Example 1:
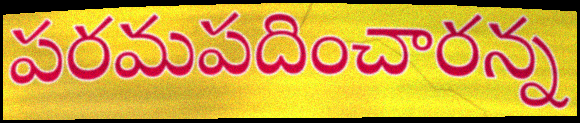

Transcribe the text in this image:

పరమపదించారన్న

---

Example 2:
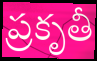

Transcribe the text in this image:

ప్రకృతీ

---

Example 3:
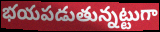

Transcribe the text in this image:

భయపడుతున్నట్టుగా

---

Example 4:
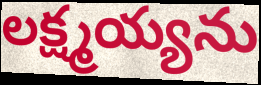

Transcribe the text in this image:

లక్ష్మయ్యను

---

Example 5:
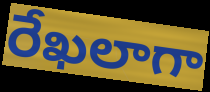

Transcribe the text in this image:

రేఖలాగా